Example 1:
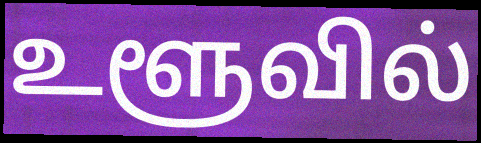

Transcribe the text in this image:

உளூவில்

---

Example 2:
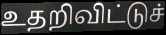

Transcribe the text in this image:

உதறிவிட்டுச்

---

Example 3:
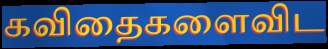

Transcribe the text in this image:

கவிதைகளைவிட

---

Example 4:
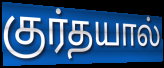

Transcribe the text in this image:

குர்தயால்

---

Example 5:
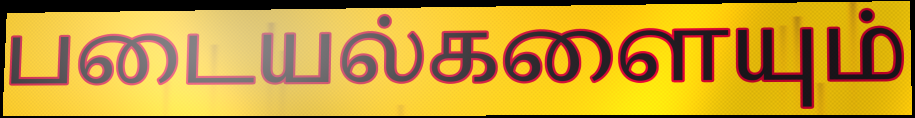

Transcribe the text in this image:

படையல்களையும்